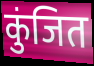
कुंजित